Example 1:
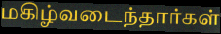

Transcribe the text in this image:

மகிழ்வடைந்தார்கள்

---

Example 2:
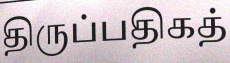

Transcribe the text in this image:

திருப்பதிகத்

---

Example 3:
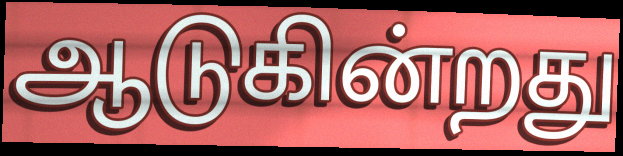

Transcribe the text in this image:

ஆடுகின்றது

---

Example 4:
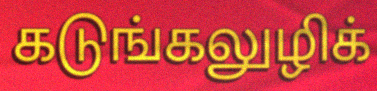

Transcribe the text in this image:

கடுங்கலுழிக்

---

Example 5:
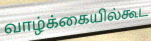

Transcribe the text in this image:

வாழ்க்கையில்கூட